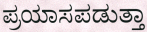
ಪ್ರಯಾಸಪಡುತ್ತಾ